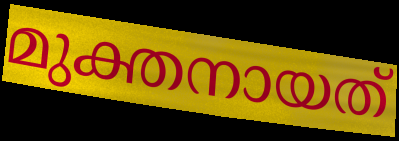
മുക്തനായത്